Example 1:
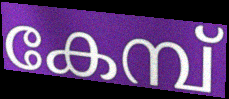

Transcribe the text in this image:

കേമ്പ്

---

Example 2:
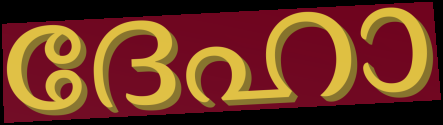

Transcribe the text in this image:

ദേഹാ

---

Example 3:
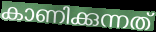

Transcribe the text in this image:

കാണിക്കുന്നത്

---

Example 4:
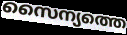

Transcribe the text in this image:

സൈന്യത്തെ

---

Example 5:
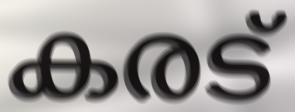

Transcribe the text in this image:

കരട്